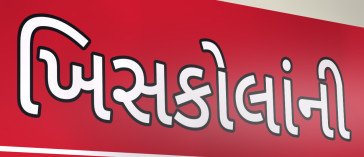
ખિસકોલાંની